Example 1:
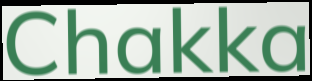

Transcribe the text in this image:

Chakka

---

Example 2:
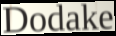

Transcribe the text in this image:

Dodake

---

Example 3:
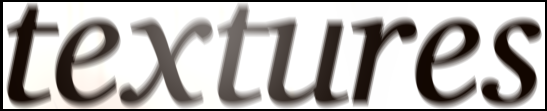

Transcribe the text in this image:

textures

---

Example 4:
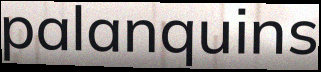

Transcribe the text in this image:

palanquins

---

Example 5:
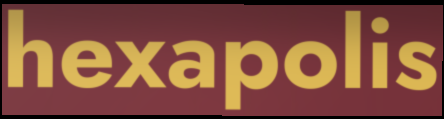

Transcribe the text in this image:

hexapolis